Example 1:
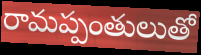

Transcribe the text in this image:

రామప్పంతులుతో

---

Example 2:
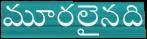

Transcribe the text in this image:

మూరలైనది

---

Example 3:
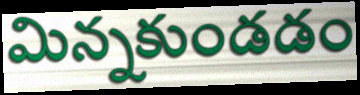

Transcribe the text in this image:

మిన్నకుండడం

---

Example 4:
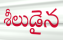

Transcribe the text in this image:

శీలుడైన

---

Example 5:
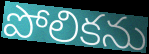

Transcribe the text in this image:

పోలికను